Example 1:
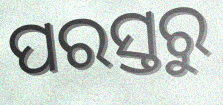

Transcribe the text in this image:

ପରସ୍ତରୁ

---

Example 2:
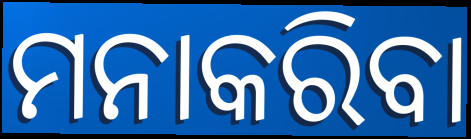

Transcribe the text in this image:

ମନାକରିବା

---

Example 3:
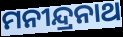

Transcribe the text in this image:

ମନୀନ୍ଦ୍ରନାଥ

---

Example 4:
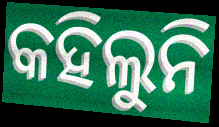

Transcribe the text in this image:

କହିଲୁନି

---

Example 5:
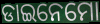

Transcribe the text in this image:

ଡାଇନେମୋ